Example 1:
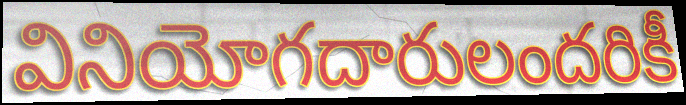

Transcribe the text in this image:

వినియోగదారులందరికీ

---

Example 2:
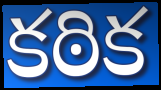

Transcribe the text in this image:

కఠిక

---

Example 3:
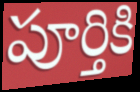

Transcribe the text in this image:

పూర్తికి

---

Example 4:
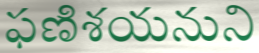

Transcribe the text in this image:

ఫణిశయనుని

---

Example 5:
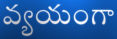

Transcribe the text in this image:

వ్యయంగా